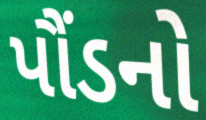
પૌંડનો